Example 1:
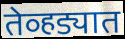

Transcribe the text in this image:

तेव्हड्यात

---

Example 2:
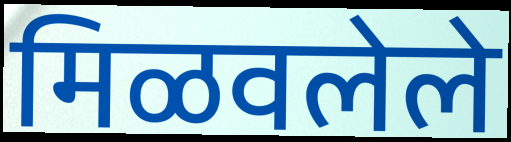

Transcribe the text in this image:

मिळवलेले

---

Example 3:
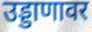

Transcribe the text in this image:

उड्डाणावर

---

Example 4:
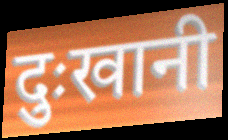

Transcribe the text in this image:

दुःखानी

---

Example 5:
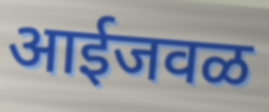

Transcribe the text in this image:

आईजवळ